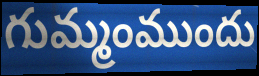
గుమ్మంముందు